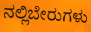
ನಲ್ಲಿಬೇರುಗಳು